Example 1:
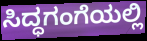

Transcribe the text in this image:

ಸಿದ್ಧಗಂಗೆಯಲ್ಲಿ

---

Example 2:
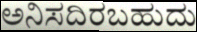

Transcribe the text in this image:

ಅನಿಸದಿರಬಹುದು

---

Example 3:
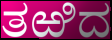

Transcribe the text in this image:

ತಱಿದ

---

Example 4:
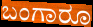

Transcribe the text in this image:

ಬಂಗಾರೂ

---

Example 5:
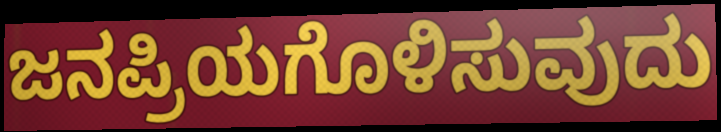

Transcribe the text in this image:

ಜನಪ್ರಿಯಗೊಳಿಸುವುದು